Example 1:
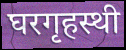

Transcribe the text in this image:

घरगृहस्थी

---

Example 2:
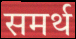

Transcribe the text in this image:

समर्थ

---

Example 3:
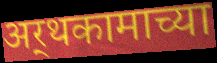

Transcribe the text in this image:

अर्थकामाच्या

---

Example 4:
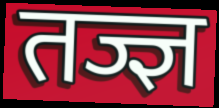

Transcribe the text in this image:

तज्ज्ञ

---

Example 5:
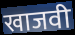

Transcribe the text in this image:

खाजवी